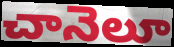
చానెలూ